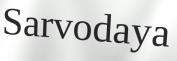
Sarvodaya